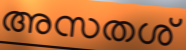
അസതശ്